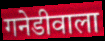
गनेडीवाला